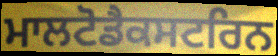
ਮਾਲਟੋਡੈਕਸਟਰਿਨ